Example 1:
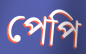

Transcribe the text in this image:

পেপি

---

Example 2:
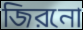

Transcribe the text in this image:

জিরনো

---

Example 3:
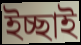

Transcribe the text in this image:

ইচ্ছাই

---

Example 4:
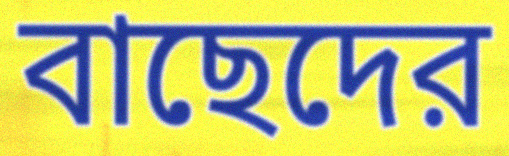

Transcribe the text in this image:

বাছেদের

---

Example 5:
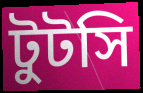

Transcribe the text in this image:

টুটসি